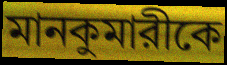
মানকুমারীকে